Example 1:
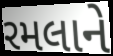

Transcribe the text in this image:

રમલાને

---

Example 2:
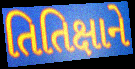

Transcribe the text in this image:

તિતિક્ષાને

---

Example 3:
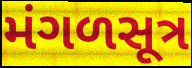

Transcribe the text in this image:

મંગળસૂત્ર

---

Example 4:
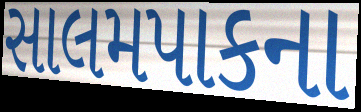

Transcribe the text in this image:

સાલમપાકના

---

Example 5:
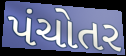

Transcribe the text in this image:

પંચોતર